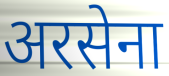
अरसेना